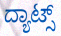
ದ್ಯಾಟ್ಸ್